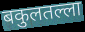
बकुलतल्ला